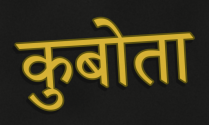
कुबोता